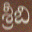
శ్రీబి